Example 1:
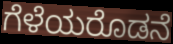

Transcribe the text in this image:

ಗೆಳೆಯರೊಡನೆ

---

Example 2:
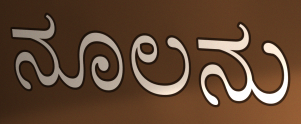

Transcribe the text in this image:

ನೂಲನು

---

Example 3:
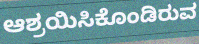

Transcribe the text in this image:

ಆಶ್ರಯಿಸಿಕೊಂಡಿರುವ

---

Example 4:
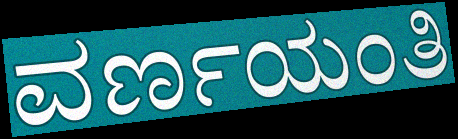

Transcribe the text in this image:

ವರ್ಣಯಂತಿ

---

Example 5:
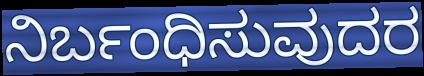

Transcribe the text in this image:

ನಿರ್ಬಂಧಿಸುವುದರ